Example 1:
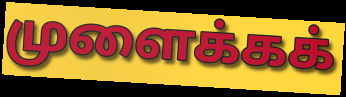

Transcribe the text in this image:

முளைக்கக்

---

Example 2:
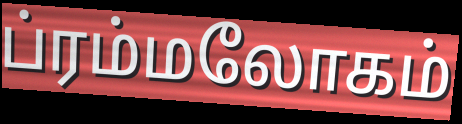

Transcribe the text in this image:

ப்ரம்மலோகம்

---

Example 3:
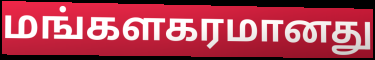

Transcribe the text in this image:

மங்களகரமானது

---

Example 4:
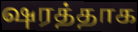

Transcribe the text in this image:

ஷரத்தாக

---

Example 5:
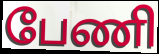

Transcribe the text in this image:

பேணி